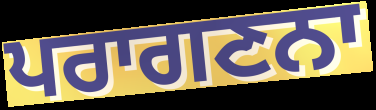
ਪਰਾਗਣਨਾ